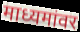
माध्यमांवर